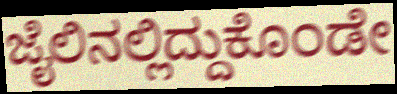
ಜೈಲಿನಲ್ಲಿದ್ದುಕೊಂಡೇ